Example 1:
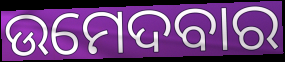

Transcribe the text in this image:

ଉମେଦବାର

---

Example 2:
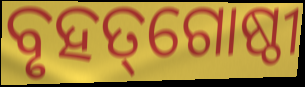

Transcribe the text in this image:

ବୃହତ୍‌ଗୋଷ୍ଠୀ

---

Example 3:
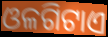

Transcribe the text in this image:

ଓଳଗିଟାଏ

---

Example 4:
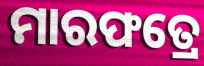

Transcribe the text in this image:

ମାରଫତ୍ରେ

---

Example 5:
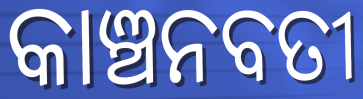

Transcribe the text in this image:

କାଞ୍ଚନବତୀ